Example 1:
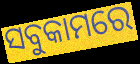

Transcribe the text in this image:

ସବୁକାମରେ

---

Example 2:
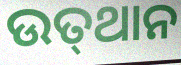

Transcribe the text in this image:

ଉତ୍‍ଥାନ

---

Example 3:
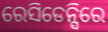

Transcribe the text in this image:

ରେସିଡେନ୍ସିରେ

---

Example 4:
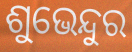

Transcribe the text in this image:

ଶୁଭେନ୍ଦୁର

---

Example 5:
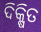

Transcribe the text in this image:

ଦିକ୍ଷିତ